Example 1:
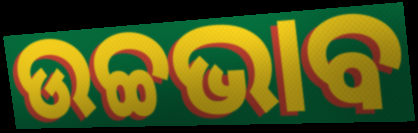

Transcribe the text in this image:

ଉଚ୍ଚଭାବ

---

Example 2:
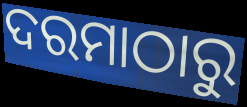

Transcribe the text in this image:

ଦରମାଠାରୁ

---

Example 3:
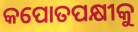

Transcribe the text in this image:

କପୋତପକ୍ଷୀକୁ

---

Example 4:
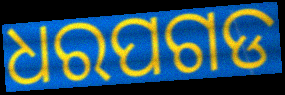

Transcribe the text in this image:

ଧରପଗଡ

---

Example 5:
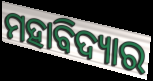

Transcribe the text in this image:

ମହାବିଦ୍ୟାର